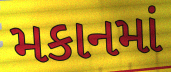
મકાનમાં